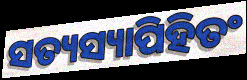
ସତ୍ୟସ୍ୟାପିହିତଂ